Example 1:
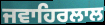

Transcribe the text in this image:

ਜਵਾਹਿਰਲਾਲ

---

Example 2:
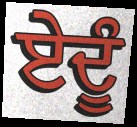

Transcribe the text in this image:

ਏਦੂੰ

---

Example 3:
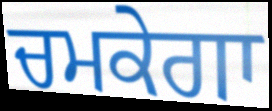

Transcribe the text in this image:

ਚਮਕੇਗਾ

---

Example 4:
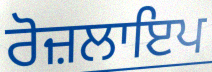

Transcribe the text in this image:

ਰੋਜ਼ਲਾਇਪ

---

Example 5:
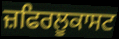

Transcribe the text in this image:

ਜ਼ਫਿਰਲੂਕਾਸਟ